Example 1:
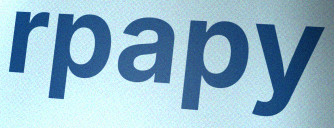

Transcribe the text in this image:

rpapy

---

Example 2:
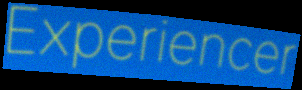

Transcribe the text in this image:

Experiencer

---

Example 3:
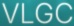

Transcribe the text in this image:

VLGC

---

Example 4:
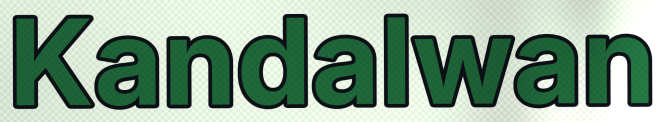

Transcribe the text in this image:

Kandalwan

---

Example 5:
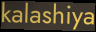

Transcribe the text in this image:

kalashiya